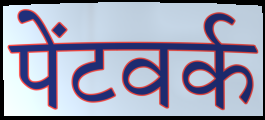
पेंटवर्क